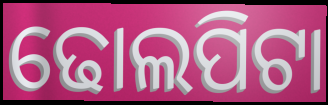
ଢୋଲପିଟା